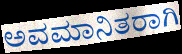
ಅವಮಾನಿತರಾಗಿ